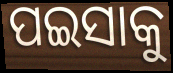
ପଇସାକୁ